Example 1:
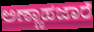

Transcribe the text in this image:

ಅಣ್ಣಾಹಜಾರೆ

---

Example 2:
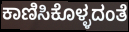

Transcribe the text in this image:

ಕಾಣಿಸಿಕೊಳ್ಳದಂತೆ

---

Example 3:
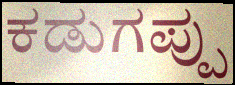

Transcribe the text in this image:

ಕಡುಗಪ್ಪು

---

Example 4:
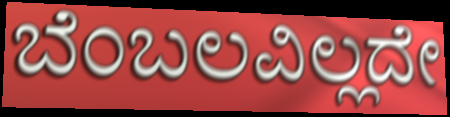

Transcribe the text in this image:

ಬೆಂಬಲವಿಲ್ಲದೇ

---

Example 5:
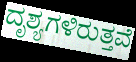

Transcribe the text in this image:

ದೃಶ್ಯಗಳಿರುತ್ತವೆ